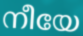
നീയേ